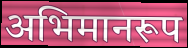
अभिमानरूप